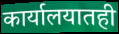
कार्यालयातही